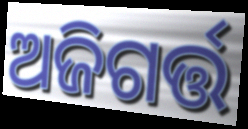
ଅଜିଗର୍ତ୍ତ